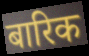
बारिक